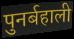
पुनर्बहाली